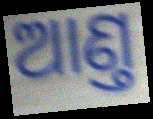
ଆଣ୍ତ